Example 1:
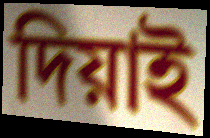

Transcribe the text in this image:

দিয়াই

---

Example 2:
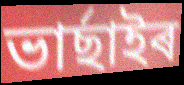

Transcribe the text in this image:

ভাৰ্ছাইৰ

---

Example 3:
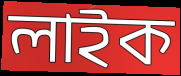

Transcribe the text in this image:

লাইক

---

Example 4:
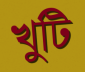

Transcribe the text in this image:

খুটি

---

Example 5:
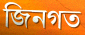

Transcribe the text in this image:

জিনগত